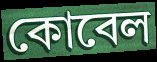
কোবেল